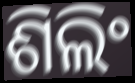
ଶିଲିଂ